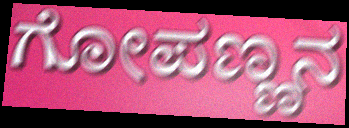
ಗೋಪಣ್ಣನ